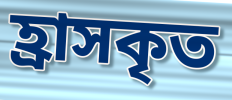
হ্রাসকৃত